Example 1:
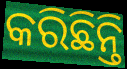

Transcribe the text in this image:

କରିଛିନ୍ତି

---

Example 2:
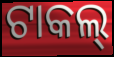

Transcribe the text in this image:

ଟାକଲ୍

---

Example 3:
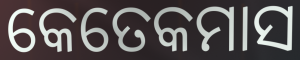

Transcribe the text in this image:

କେତେକମାସ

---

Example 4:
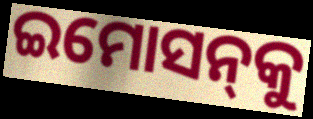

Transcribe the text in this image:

ଇମୋସନ୍‌କୁ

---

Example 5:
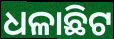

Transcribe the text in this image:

ଧଳାଛିଟ